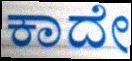
ಕಾದೇ